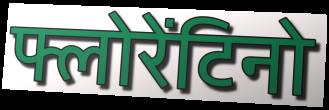
फ्लोरेंटिनो